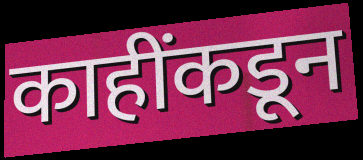
काहींकडून